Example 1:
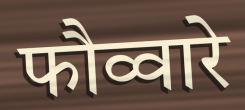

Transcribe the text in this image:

फौव्वारे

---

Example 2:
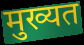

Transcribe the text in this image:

मुख्‍यत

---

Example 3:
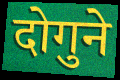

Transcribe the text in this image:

दोगुने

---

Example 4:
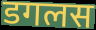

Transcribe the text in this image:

डगलस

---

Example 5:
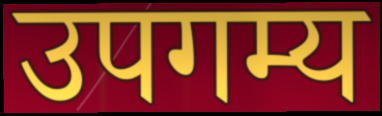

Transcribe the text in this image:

उपगम्य